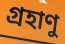
গ্রহাণু